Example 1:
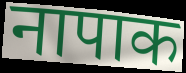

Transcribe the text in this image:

नापाक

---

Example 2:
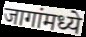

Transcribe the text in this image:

जागांमध्ये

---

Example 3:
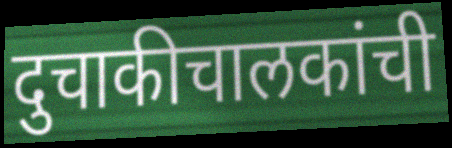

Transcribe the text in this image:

दुचाकीचालकांची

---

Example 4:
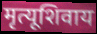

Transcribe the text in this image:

मृत्यूशिवाय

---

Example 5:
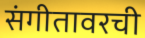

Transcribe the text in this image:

संगीतावरची